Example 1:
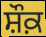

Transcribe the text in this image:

ਸ਼ੌਕ਼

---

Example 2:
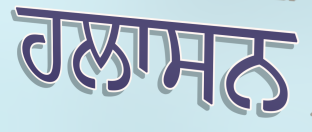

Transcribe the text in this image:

ਹਲਾਸਨ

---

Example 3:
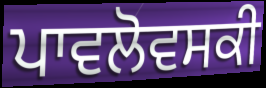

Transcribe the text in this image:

ਪਾਵਲੋਵਸਕੀ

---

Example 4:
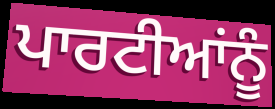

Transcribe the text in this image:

ਪਾਰਟੀਆਂਨੂੰ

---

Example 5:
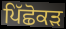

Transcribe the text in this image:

ਪਿੱਛੋਕੜ